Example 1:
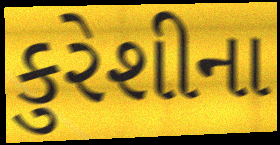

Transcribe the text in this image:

કુરેશીના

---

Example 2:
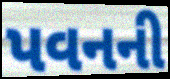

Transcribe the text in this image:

પવનની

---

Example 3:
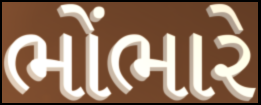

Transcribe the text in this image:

ભોંભારે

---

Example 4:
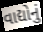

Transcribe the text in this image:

વાદ્યોનું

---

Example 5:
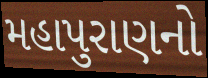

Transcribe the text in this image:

મહાપુરાણનો